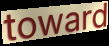
toward